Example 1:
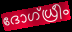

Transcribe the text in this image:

ദോഗ്ധ്രീം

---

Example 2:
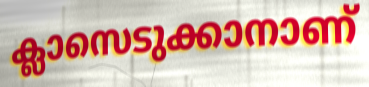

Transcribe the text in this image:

ക്ലാസെടുക്കാനാണ്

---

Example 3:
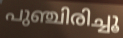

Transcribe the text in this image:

പുഞ്ചിരിച്ചൂ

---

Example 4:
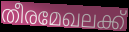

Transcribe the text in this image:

തീരമേഖലക്ക്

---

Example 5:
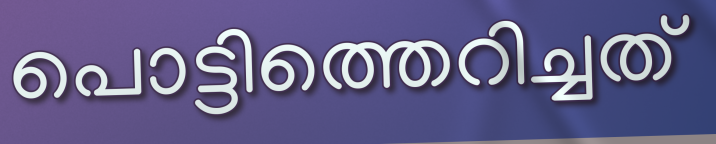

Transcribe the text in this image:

പൊട്ടിത്തെറിച്ചത്